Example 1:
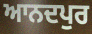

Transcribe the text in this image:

ਆਨਦਪੁਰ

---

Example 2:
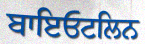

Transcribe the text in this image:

ਬਾਇਓਟਲਿਨ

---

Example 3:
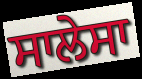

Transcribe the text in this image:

ਸਾਲੇਸਾ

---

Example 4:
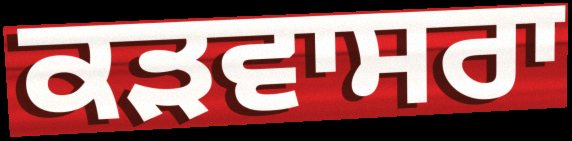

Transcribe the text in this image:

ਕੜਵਾਸਰਾ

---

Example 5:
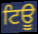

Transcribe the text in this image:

ਟਿਊ